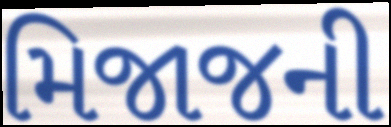
મિજાજની